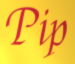
Pip